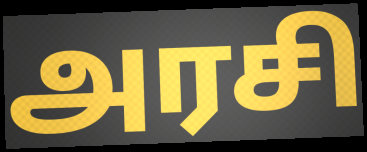
அரசி